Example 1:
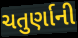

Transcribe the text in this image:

ચતુર્ણાની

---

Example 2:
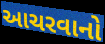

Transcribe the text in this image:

આચરવાનો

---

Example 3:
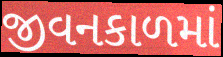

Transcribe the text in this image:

જીવનકાળમાં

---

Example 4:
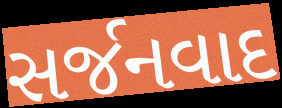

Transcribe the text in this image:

સર્જનવાદ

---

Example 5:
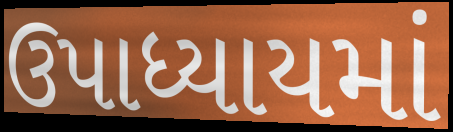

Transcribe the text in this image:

ઉપાધ્યાયમાં